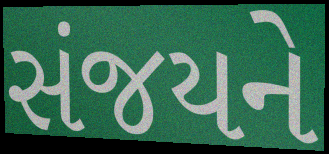
સંજયને